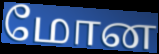
மோன